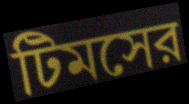
টিমসের